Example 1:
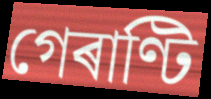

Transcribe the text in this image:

গেৰাণ্টি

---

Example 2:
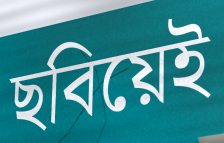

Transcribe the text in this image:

ছবিয়েই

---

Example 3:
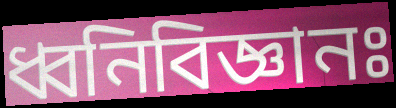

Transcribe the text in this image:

ধ্বনিবিজ্ঞানঃ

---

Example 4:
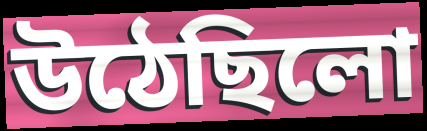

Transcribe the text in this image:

উঠেছিলো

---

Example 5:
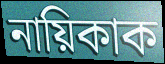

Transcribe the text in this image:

নায়িকাক